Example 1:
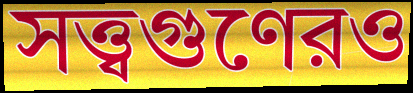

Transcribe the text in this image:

সত্ত্বগুণেরও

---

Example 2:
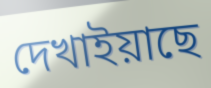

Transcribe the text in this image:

দেখাইয়াছে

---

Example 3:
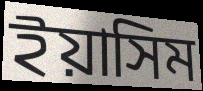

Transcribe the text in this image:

ইয়াসিম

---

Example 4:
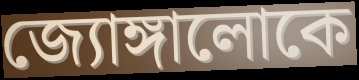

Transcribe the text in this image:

জ্যোঙ্গালোকে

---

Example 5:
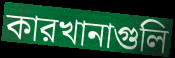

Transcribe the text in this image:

কারখানাগুলি